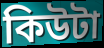
কিউটা